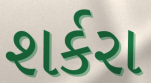
શર્કરા